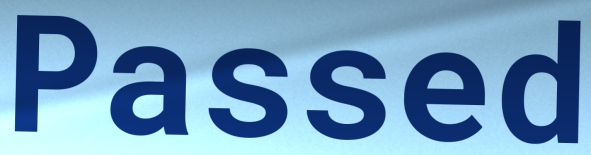
Passed